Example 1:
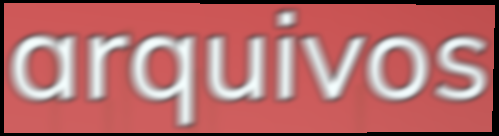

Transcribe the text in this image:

arquivos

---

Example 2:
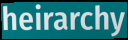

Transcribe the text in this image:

heirarchy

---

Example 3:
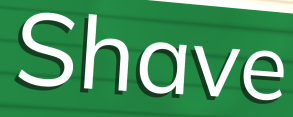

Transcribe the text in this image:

Shave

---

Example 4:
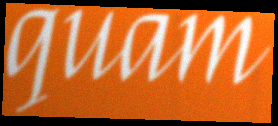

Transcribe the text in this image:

quam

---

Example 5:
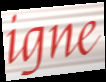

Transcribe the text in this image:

igne